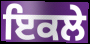
ਇਕਲੇ